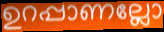
ഉറപ്പാണല്ലോ